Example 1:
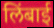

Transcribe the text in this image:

लिंबाई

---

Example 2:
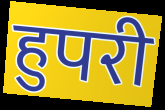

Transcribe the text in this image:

हुपरी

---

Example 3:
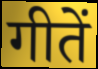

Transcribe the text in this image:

गीतें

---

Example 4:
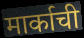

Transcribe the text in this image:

मार्काची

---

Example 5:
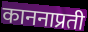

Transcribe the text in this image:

काननाप्रती